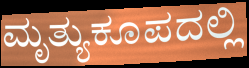
ಮೃತ್ಯುಕೂಪದಲ್ಲಿ